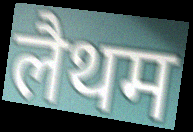
लैथम